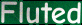
Fluted